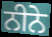
ਨੀਨੇ